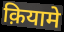
क़ियामे